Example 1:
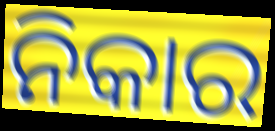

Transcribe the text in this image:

ନିକାର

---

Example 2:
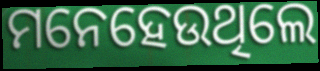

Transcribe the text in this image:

ମନେହେଉଥିଲେ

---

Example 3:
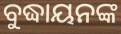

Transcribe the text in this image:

ବୁଦ୍ଧାୟନଙ୍କ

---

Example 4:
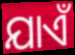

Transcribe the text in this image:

ଯାଏଁ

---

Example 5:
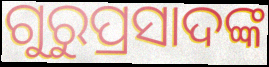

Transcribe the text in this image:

ଗୁରୁପ୍ରସାଦଙ୍କ